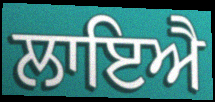
ਲਾਇਐ